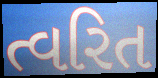
ત્વરિત